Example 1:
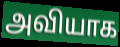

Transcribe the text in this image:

அவியாக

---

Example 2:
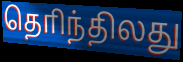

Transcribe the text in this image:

தெரிந்திலது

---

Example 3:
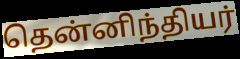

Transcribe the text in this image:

தென்னிந்தியர்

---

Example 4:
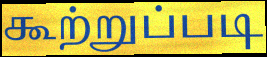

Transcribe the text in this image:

கூற்றுப்படி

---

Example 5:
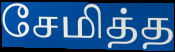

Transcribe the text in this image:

சேமித்த